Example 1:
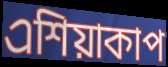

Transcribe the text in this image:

এশিয়াকাপ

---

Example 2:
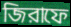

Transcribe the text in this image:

জিরাফে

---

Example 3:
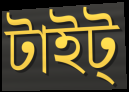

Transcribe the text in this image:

টাইট্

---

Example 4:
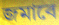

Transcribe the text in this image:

জমাবে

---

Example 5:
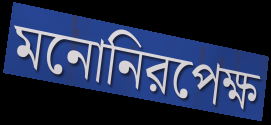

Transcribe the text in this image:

মনোনিরপেক্ষ